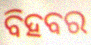
ବିହବର